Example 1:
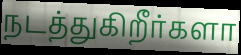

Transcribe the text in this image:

நடத்துகிறீர்களா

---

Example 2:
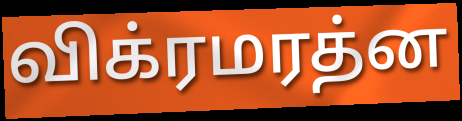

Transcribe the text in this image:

விக்ரமரத்ன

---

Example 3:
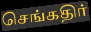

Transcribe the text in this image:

செங்கதிர்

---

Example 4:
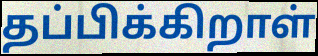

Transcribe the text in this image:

தப்பிக்கிறாள்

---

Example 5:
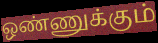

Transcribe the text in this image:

ஒண்ணுக்கும்